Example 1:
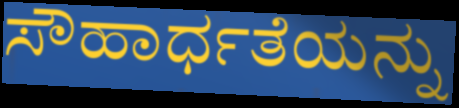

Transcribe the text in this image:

ಸೌಹಾರ್ಧತೆಯನ್ನು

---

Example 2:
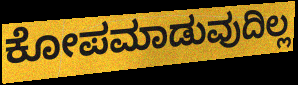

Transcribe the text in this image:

ಕೋಪಮಾಡುವುದಿಲ್ಲ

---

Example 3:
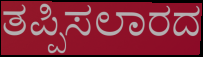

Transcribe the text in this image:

ತಪ್ಪಿಸಲಾರದ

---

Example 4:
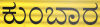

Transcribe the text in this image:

ಕುಂಬಾರ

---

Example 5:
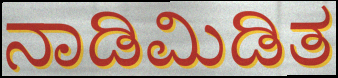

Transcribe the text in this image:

ನಾಡಿಮಿಡಿತ